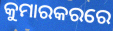
କୁମାରକରରେ